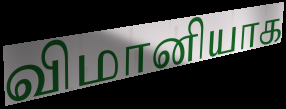
விமானியாக